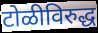
टोळीविरुद्ध